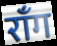
रॉंग